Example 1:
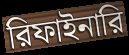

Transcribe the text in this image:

রিফাইনারি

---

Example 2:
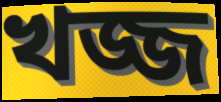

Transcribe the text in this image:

খজ্জ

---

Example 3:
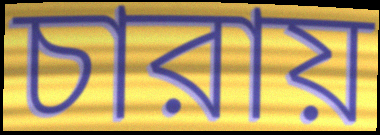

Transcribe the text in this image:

চারায়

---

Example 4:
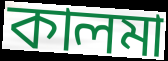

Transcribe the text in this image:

কালমা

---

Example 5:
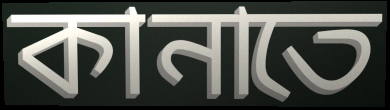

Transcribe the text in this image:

কানাতে